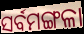
ସର୍ବମଙ୍ଗଳା